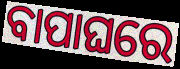
ବାପାଘରେ